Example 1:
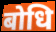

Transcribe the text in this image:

बोधि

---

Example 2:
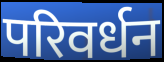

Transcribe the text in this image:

परिवर्धन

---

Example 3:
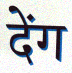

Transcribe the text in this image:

देंग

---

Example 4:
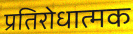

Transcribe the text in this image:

प्रतिरोधात्मक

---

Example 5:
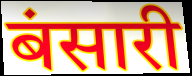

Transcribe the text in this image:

बंसारी